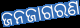
ଜନଜାଗରଣ